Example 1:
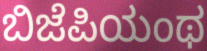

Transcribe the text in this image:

ಬಿಜೆಪಿಯಂಥ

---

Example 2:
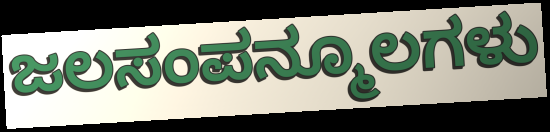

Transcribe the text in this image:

ಜಲಸಂಪನ್ಮೂಲಗಳು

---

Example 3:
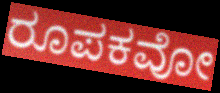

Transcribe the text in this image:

ರೂಪಕವೋ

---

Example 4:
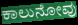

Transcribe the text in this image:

ಕಾಲುನೋವು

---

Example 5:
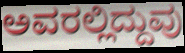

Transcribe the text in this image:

ಅವರಲ್ಲಿದ್ದುವು